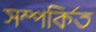
সম্পৰ্কিত